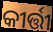
କୀର୍ତ୍ତୀ